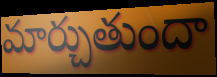
మార్చుతుందా